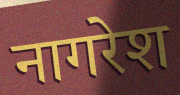
नागरेश